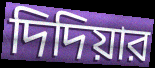
দিদিয়ার